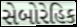
સેબોરેહિક